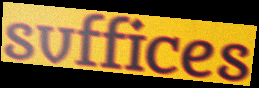
suffices